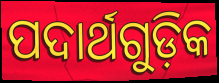
ପଦାର୍ଥଗୁଡ଼ିକ